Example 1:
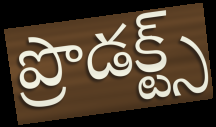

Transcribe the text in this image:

ప్రొడక్ట్స్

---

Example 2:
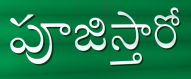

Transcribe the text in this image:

పూజిస్తారో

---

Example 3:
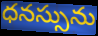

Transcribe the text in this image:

ధనస్సును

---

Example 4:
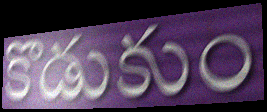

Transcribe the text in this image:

కొడుకుం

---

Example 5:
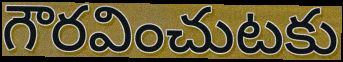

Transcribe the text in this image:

గౌరవించుటకు